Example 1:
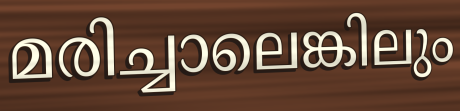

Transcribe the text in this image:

മരിച്ചാലെങ്കിലും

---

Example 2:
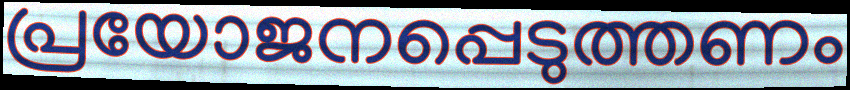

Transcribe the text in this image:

പ്രയോജനപ്പെടുത്തണം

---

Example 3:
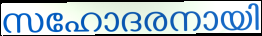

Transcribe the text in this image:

സഹോദരനായി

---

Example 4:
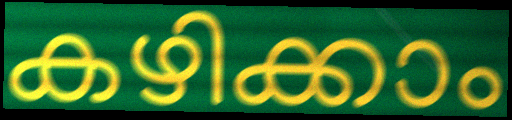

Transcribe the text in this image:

കഴിക്കാം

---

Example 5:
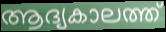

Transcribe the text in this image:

ആദ്യകാലത്ത്